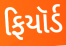
ફિયૉર્ડ